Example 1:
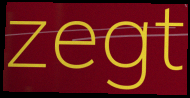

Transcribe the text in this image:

zegt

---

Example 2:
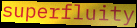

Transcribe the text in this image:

superfluity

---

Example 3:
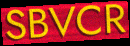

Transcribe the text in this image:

SBVCR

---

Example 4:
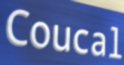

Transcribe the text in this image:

Coucal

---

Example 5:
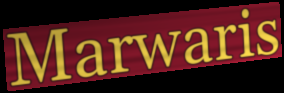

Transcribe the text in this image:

Marwaris